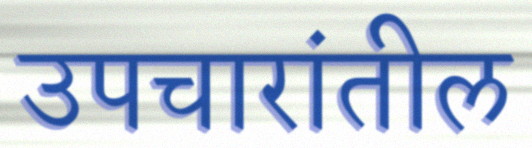
उपचारांतील